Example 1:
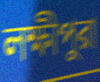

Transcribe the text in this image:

লক্ষীপুরা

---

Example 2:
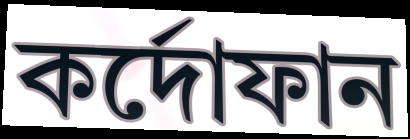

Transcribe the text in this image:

কর্দোফান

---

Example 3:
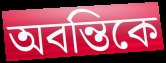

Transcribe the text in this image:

অবন্তিকে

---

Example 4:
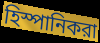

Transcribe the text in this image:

হিস্পানিকরা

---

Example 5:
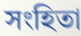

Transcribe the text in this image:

সংহিতা